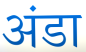
अंडा